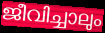
ജീവിച്ചാലും